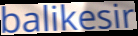
balikesir